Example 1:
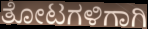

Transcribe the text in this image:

ತೋಟಗಳಿಗಾಗಿ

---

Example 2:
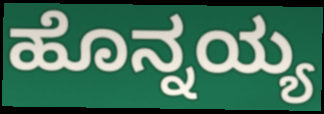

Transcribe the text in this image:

ಹೊನ್ನಯ್ಯ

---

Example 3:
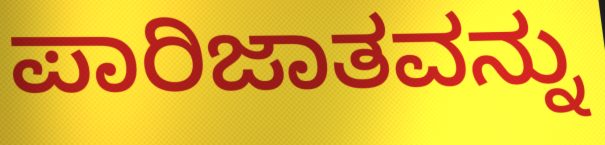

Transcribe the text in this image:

ಪಾರಿಜಾತವನ್ನು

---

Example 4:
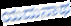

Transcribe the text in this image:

ಯದುನಾಥ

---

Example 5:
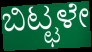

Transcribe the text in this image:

ಬಿಟ್ಟಳೇ